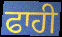
ਫਾਹੀ